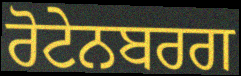
ਰੋਟੇਨਬਰਗ